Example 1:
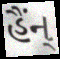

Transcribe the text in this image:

હૈંન્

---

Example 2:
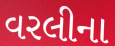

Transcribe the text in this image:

વરલીના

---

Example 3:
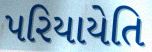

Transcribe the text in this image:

પરિયાયેતિ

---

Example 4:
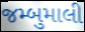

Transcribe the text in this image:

જમ્બુમાલી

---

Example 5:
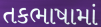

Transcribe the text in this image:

તકભાષામાં